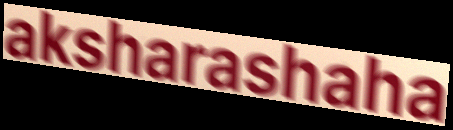
aksharashaha